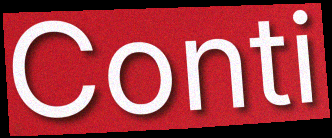
Conti